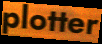
plotter